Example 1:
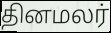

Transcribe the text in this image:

தினமலர்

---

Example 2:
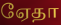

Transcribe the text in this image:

ஏேதா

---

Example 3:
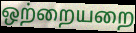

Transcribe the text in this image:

ஒற்றையறை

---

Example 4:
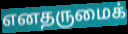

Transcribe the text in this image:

எனதருமைக்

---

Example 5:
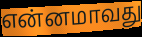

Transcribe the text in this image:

என்னமாவது